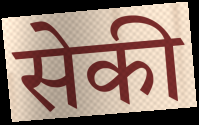
सेकी